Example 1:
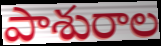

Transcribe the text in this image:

పాశురాల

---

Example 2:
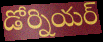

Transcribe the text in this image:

డోర్నియర్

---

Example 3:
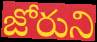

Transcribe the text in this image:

జోరుని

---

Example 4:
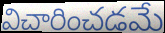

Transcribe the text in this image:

విచారించడమే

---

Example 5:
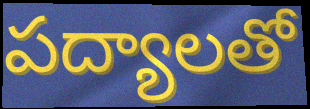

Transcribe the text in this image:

పద్యాలతో